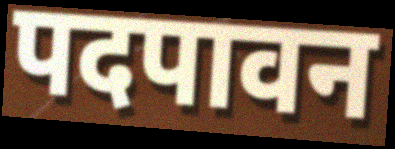
पदपावन